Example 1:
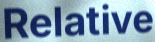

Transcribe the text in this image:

Relative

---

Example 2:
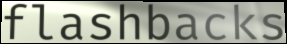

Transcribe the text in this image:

flashbacks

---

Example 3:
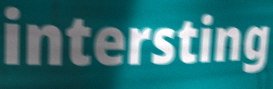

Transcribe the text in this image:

intersting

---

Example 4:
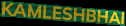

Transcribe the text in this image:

KAMLESHBHAI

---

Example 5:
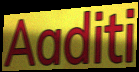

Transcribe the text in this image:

Aaditi